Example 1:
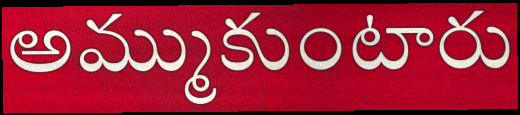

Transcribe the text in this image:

అమ్ముకుంటారు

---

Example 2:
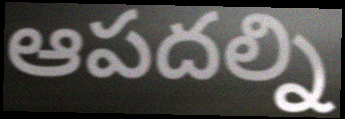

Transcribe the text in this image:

ఆపదల్ని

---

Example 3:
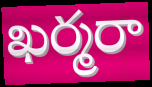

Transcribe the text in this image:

ఖర్మరా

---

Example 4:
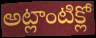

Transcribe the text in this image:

అట్లాంటిక్లో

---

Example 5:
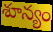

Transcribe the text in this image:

శూన్యం